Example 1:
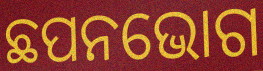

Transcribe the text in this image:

ଛପନଭୋଗ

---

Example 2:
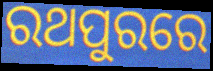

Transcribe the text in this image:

ରଥପୁରରେ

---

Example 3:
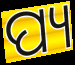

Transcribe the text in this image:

ପ୍ୟ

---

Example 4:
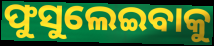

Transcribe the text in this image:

ଫୁସୁଲେଇବାକୁ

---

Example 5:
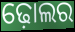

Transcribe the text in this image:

ଢ଼ୋଲର